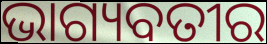
ଭାଗ୍ୟବତୀର